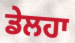
ਡੇਲਹਾ